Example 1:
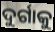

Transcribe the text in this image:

ଦୁର୍ଗାକୁ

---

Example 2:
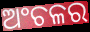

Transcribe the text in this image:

ଅଂଚଳର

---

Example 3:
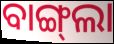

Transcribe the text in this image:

ବାଙ୍ଗ୍‍ଲା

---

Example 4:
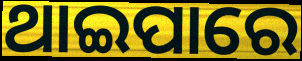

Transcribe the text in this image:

ଥାଇପାରେ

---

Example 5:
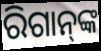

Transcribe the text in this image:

ରିଗାନ୍‌ଙ୍କ